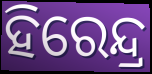
ହିରେନ୍ଦ୍ର